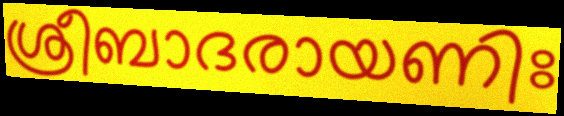
ശ്രീബാദരായണിഃ